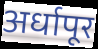
अर्धापूर